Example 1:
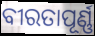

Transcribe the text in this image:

ବୀରତାପୂର୍ଣ୍ଣ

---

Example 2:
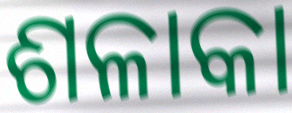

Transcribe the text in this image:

ଶଳାକା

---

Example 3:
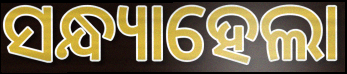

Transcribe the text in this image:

ସନ୍ଧ୍ୟାହେଲା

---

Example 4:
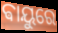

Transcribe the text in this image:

ଵାୟୁରେ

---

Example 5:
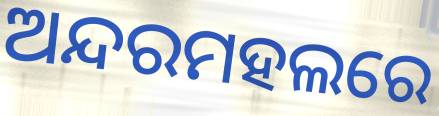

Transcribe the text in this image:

ଅନ୍ଦରମହଲରେ